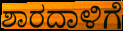
ಶಾರದಾಳಿಗೆ